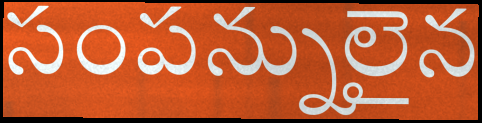
సంపన్నులైన